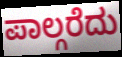
ಪಾಲ್ಗರೆದು